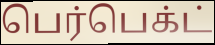
பெர்பெக்ட்